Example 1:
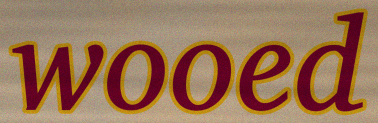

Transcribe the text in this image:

wooed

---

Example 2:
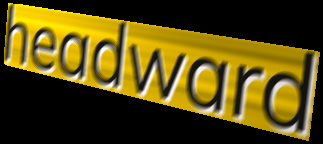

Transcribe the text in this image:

headward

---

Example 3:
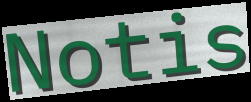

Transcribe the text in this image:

Notis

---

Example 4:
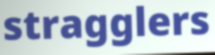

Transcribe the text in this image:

stragglers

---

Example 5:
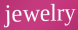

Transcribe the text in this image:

jewelry